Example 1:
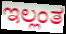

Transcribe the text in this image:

ಇಲ್ಲಂತ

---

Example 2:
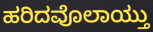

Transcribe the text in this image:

ಹರಿದವೊಲಾಯ್ತು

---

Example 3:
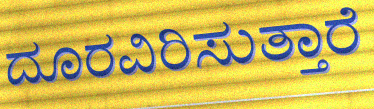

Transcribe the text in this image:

ದೂರವಿರಿಸುತ್ತಾರೆ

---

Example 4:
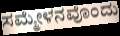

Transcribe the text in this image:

ಸಮ್ಮೇಳನವೊಂದು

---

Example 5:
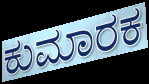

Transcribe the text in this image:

ಕುಮಾರಕ